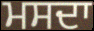
ਮਸਦਾ